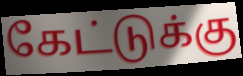
கேட்டுக்கு